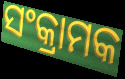
ସଂକ୍ରାମକ